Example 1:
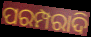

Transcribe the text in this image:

ପରମ୍ପରାଦି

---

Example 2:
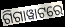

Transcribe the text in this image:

ଗିଗାୱାଟରେ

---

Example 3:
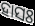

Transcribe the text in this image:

ହାସଃ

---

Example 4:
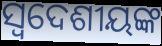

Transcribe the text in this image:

ସ୍ଵଦେଶୀୟଙ୍କ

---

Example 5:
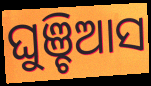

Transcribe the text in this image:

ଘୁଞ୍ଚିଆସ